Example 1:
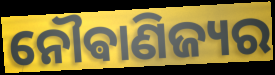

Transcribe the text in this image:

ନୌଵାଣିଜ୍ୟର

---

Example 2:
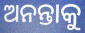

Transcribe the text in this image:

ଅନନ୍ତାକୁ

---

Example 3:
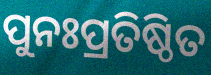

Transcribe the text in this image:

ପୁନଃପ୍ରତିଷ୍ଠିତ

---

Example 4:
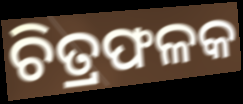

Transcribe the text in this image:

ଚିତ୍ରଫଳକ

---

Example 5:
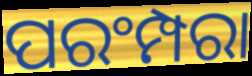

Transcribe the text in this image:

ପରଂମ୍ପରା